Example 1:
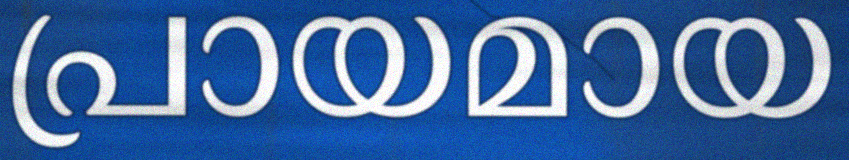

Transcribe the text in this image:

പ്രായമായ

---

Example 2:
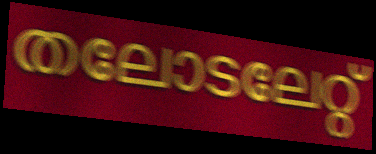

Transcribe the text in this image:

തലോടലേറ്റ്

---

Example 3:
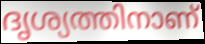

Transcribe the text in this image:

ദൃശ്യത്തിനാണ്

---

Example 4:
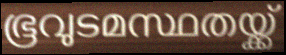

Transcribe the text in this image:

ഭൂവുടമസ്ഥതയ്ക്ക്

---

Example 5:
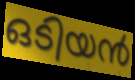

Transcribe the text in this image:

ഒടിയൻ